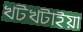
খটখটাইয়া